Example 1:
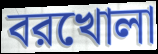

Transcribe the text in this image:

বরখোলা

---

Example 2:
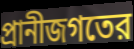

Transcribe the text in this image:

প্রানীজগতের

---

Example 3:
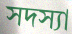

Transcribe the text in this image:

সদস্যা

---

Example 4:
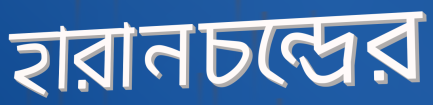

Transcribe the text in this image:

হারানচন্দ্রের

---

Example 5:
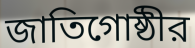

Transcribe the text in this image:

জাতিগোষ্ঠীর